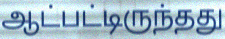
ஆட்பட்டிருந்தது